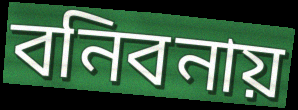
বনিবনায়